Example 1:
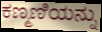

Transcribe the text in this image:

ಕಣ್ಮಣಿಯನ್ನು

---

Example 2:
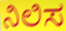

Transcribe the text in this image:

ನಿಲಿಸ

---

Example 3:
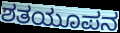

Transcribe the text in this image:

ಶತಯೂಪನ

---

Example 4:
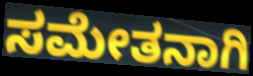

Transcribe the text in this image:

ಸಮೇತನಾಗಿ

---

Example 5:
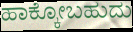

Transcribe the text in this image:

ಹಾಕ್ಕೋಬಹುದು